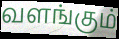
வளங்கும்